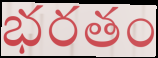
భరతం